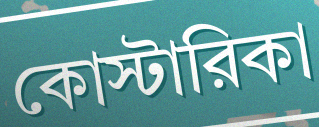
কোস্টারিকা